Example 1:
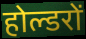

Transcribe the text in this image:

होल्डरों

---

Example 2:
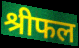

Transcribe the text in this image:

श्रीफल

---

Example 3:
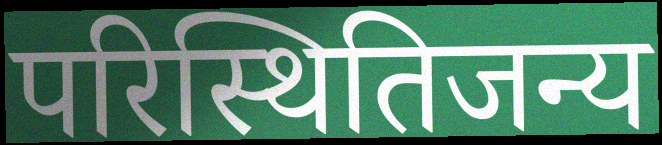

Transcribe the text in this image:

परिस्थितिजन्य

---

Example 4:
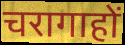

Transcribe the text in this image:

चरागाहों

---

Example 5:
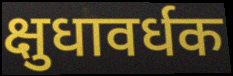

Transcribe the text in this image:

क्षुधावर्धक